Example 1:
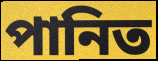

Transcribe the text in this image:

পানিত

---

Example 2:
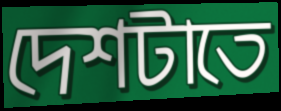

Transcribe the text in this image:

দেশটাতে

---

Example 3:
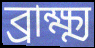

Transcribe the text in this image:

ব্রাক্ষ্ম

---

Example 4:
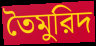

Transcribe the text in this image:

তৈমুরিদ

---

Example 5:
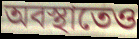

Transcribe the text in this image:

অবস্থাতেও